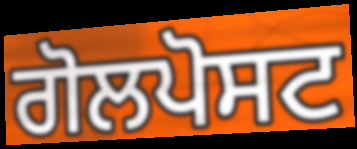
ਗੋਲਪੋਸਟ